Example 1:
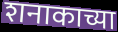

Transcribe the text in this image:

शनाकाच्या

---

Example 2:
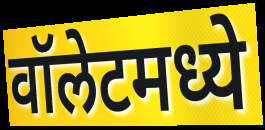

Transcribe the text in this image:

वॉलेटमध्ये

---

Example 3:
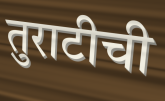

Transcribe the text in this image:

तुराटीची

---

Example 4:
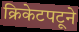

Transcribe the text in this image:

क्रिकेटपटूने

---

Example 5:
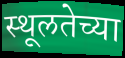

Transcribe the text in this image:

स्थूलतेच्या